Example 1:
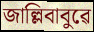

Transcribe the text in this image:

জাল্লিবাবুৱে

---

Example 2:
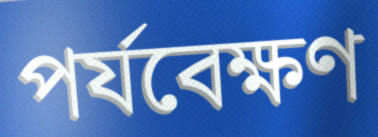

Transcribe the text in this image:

পৰ্যবেক্ষণ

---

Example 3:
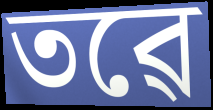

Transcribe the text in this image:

তৱে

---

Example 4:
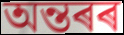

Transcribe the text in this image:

অন্তৰৰ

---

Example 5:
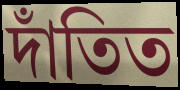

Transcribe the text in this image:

দাঁতিত